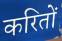
करितों